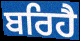
ਬਰਿਹੈ